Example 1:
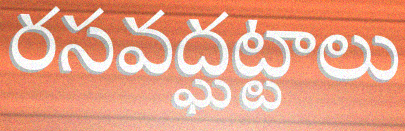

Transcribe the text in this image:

రసవద్ఘట్టాలు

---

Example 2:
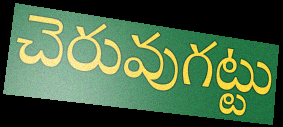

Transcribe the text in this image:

చెరువుగట్టు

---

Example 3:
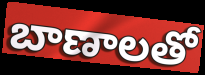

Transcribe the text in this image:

బాణాలతో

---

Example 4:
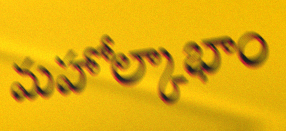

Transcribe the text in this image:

మహోల్కాభాం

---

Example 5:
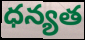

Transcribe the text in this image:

ధన్యత